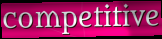
competitive